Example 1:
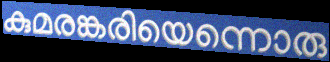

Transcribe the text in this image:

കുമരങ്കരിയെന്നൊരു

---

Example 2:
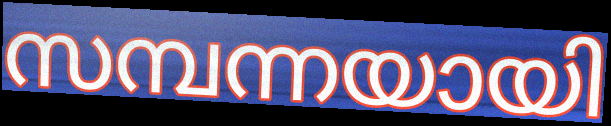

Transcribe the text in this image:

സമ്പന്നയായി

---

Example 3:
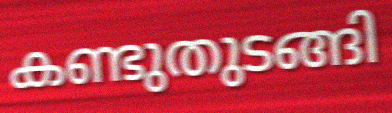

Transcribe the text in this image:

കണ്ടുതുടങ്ങി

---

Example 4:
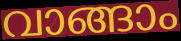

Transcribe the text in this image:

വാങ്ങാം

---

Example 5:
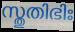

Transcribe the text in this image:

സ്തുതിഭിഃ